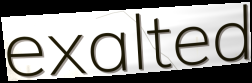
exalted